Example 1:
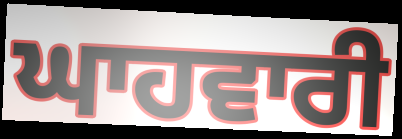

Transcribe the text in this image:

ਘਾਹਵਾਰੀ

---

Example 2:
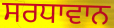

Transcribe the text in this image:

ਸਰਧਾਵਾਨ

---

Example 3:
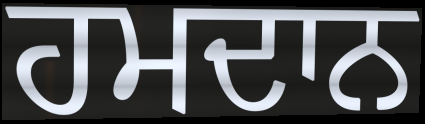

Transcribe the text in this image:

ਹਮਦਾਨ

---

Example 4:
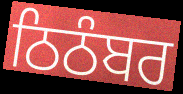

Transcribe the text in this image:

ਠਿਠੰਬਰ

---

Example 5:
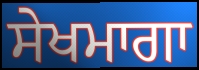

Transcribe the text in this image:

ਸੇਖਮਾਗਾ